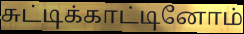
சுட்டிக்காட்டினோம்